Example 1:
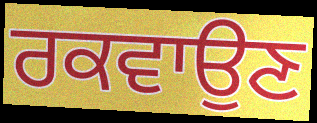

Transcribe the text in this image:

ਰਕਵਾਉਣ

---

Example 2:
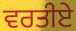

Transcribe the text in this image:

ਵਰਤੀਏ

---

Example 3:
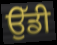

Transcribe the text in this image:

ਉੱਡੀ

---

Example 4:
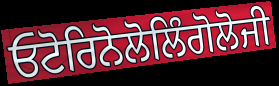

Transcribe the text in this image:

ਓਟੋਰਿਨੋਲੋਲਿੰਗੋਲੋਜੀ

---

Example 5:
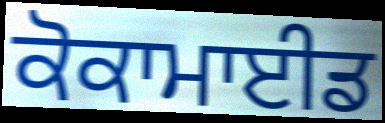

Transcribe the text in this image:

ਕੋਕਾਮਾਈਡ